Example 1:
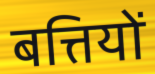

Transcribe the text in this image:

बत्तियों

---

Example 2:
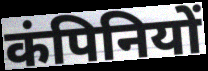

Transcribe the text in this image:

कंपिनियों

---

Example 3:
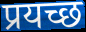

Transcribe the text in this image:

प्रयच्छ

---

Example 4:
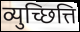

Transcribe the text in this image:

व्युच्छित्ति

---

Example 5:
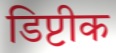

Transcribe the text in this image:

डिप्टीक